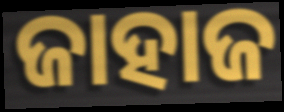
ଜାହାଜ